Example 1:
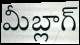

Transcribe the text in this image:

మీబ్లాగ్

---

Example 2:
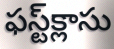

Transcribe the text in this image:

ఫస్ట్‌క్లాసు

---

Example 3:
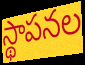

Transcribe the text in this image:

స్థాపనల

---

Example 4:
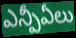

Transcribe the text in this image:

ఎన్పీఏలు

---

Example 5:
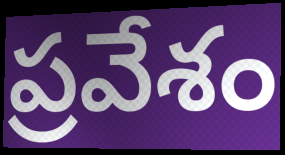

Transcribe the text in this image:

ప్రవేశం